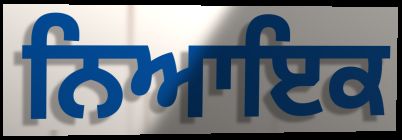
ਨਿਆਇਕ